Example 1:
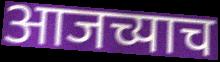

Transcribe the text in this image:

आजच्याच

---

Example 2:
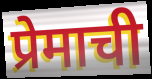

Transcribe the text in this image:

प्रेमाची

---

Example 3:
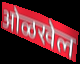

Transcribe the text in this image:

ओळखेल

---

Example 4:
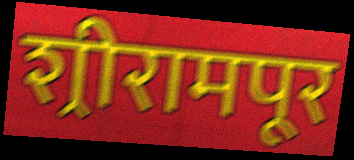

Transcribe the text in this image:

श्रीरामपूर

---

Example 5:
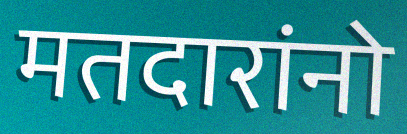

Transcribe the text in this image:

मतदारांनो